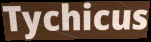
Tychicus